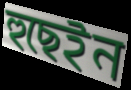
হুছেইন